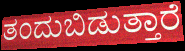
ತಂದುಬಿಡುತ್ತಾರೆ